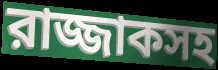
রাজ্জাকসহ